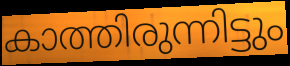
കാത്തിരുന്നിട്ടും